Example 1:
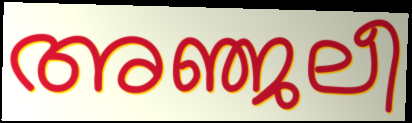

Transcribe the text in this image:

അഞ്ജലീ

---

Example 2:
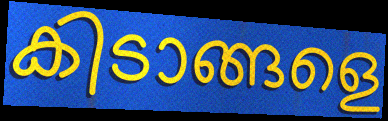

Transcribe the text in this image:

കിടാങ്ങളെ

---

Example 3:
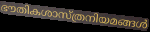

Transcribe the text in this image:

ഭൗതികശാസ്ത്രനിയമങ്ങൾ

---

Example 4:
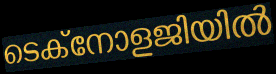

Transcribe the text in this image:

ടെക്‌നോളജിയിൽ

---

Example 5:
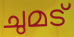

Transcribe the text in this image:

ചുമട്